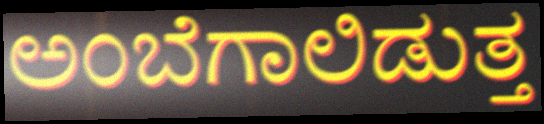
ಅಂಬೆಗಾಲಿಡುತ್ತ